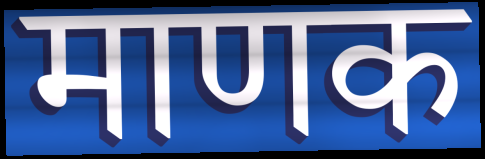
माणक